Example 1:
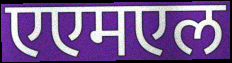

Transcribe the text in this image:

एएमएल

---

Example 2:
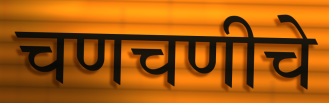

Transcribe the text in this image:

चणचणीचे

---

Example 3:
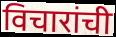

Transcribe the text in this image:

विचारांची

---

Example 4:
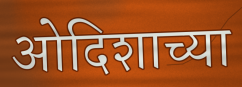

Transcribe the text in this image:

ओदिशाच्या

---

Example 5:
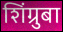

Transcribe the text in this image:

शिंग्रुबा